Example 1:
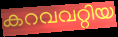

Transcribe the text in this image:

കറവവറ്റിയ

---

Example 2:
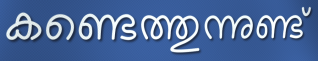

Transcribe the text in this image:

കണ്ടെത്തുന്നുണ്ട്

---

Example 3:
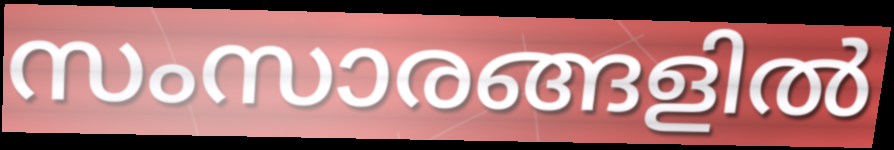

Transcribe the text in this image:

സംസാരങ്ങളിൽ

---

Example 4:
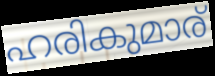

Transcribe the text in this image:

ഹരികുമാര്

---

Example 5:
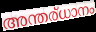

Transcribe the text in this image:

അന്തര്ധാനം